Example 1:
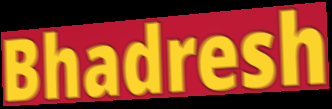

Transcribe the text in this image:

Bhadresh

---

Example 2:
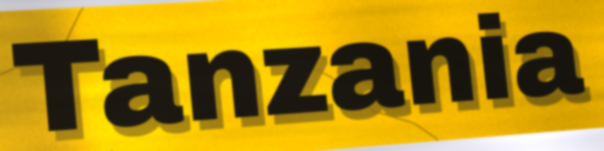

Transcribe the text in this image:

Tanzania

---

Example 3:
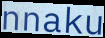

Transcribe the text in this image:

nnaku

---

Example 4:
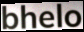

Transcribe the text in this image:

bhelo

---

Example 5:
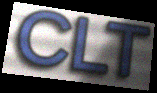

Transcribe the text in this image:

CLT